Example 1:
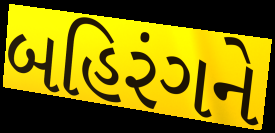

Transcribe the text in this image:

બહિરંગને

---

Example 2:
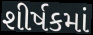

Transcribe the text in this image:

શીર્ષકમાં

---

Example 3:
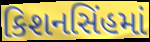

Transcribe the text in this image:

કિશનસિંહમાં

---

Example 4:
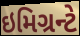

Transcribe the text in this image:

ઇમિગ્રન્ટે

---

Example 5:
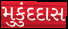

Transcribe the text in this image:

મુકુંદદાસ